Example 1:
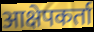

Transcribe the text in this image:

आक्षेपकर्ता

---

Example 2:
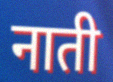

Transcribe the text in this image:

नाती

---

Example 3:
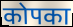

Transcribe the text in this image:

कोपका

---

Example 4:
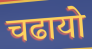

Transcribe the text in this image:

चढायो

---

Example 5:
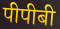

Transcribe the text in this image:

पीपीबी